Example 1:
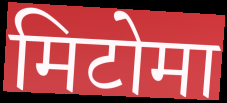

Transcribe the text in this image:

मिटोमा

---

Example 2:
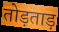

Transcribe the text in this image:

तोड़ताड़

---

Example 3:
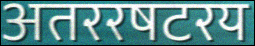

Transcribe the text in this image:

अतररषटरय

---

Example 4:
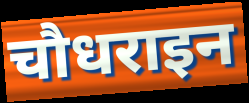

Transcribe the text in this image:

चौधराइन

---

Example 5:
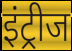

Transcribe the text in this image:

इंट्रीज